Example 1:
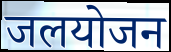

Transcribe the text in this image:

जलयोजन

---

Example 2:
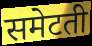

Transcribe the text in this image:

समेटती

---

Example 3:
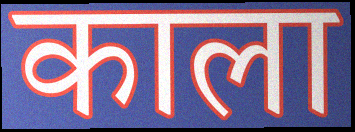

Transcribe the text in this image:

काला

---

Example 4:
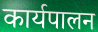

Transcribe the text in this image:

कार्यपालन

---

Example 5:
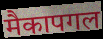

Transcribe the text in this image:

मैकापगल